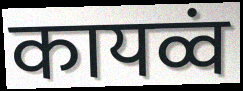
कायव्वं